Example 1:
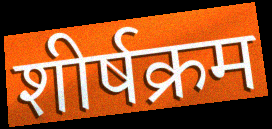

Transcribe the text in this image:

शीर्षक्रम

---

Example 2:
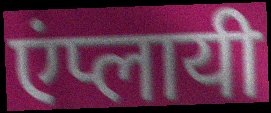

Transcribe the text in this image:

एंप्लायी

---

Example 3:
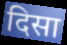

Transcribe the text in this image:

दिसा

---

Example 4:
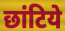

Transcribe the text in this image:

छांटिये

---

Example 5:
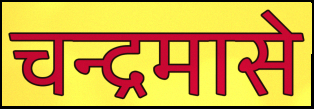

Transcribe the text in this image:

चन्द्रमासे